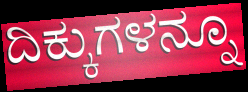
ದಿಕ್ಕುಗಳನ್ನೂ